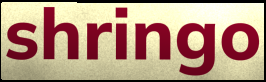
shringo